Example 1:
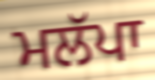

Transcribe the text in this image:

ਮਲੱਪਾ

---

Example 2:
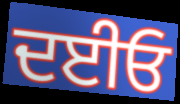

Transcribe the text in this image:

ਦਈਓ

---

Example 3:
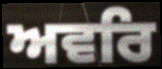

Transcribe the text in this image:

ਅਵਰਿ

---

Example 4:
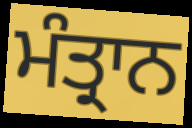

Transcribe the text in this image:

ਮੰਤ੍ਰਾਨ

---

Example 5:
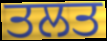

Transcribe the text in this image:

ਤਲਤ